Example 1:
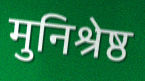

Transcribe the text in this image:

मुनिश्रेष्ठ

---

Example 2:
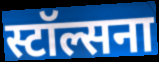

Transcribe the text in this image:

स्टॉल्सना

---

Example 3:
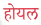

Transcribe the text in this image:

होयल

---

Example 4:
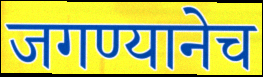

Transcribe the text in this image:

जगण्यानेच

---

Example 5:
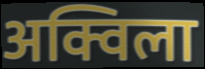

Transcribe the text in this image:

अक्विला